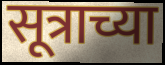
सूत्राच्या